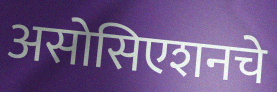
असोसिएशनचे